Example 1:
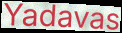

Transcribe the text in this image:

Yadavas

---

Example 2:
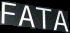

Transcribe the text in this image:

FATA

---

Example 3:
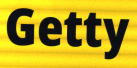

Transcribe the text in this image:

Getty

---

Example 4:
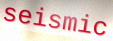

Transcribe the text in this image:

seismic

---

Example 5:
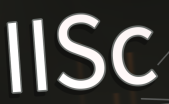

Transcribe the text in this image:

IISc